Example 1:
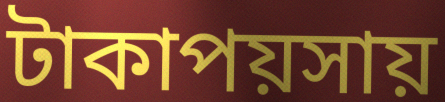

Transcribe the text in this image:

টাকাপয়সায়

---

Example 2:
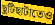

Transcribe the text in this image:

ছুটিছাটাতেও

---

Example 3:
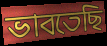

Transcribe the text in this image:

ভাবতেছি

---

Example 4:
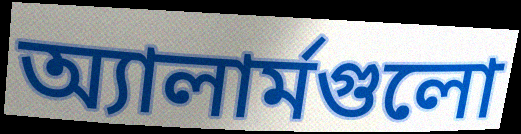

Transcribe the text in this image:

অ্যালার্মগুলো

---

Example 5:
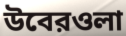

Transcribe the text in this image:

উবেরওলা